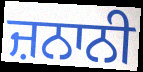
ਜ਼ਨਾਨੀ